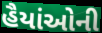
હૈયાંઓની